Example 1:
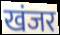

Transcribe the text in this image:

खंजर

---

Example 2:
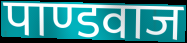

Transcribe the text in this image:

पाण्डवाज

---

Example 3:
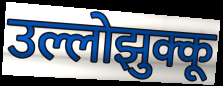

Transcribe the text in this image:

उल्लोझुक्कू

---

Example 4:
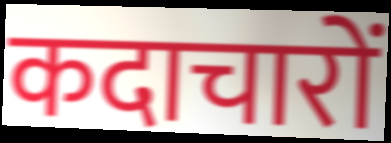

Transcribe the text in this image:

कदाचारों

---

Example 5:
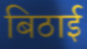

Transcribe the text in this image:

बिठाई